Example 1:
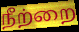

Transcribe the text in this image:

நீற்றை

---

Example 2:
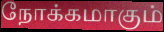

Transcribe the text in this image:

நோக்கமாகும்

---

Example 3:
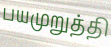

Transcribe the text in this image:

பயமுறுத்தி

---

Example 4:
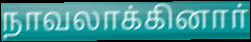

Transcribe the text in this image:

நாவலாக்கினார்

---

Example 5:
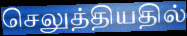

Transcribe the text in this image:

செலுத்தியதில்